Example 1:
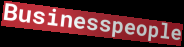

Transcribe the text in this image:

Businesspeople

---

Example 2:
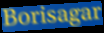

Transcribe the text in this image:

Borisagar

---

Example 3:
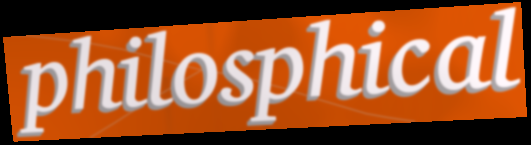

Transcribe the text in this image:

philosphical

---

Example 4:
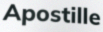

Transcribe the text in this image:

Apostille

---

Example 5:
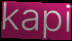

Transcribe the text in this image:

kapi